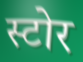
स्टोर